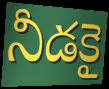
నీడకై